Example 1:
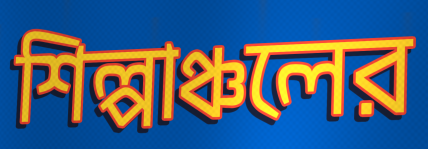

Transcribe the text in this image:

শিল্পাঞ্চলের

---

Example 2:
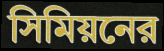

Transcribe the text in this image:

সিমিয়নের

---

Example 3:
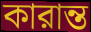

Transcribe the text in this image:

কারান্ত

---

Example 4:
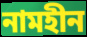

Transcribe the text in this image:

নামহীন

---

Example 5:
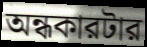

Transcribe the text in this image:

অন্ধকারটার